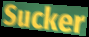
Sucker